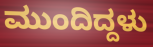
ಮುಂದಿದ್ದಳು